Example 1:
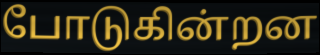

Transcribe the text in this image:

போடுகின்றன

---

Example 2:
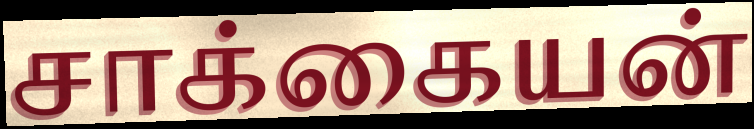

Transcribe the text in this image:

சாக்கையன்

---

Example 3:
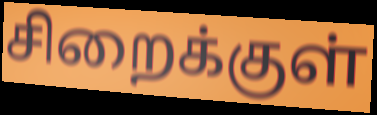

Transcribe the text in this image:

சிறைக்குள்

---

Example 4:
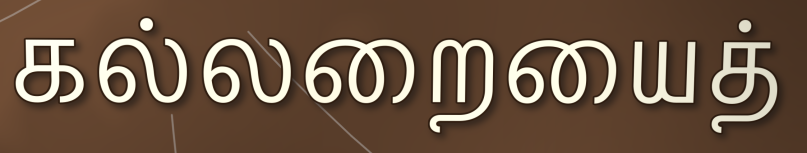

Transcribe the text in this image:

கல்லறையைத்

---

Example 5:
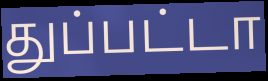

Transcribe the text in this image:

துப்பட்டா